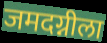
जमदग्नीला